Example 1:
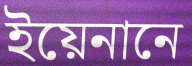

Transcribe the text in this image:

ইয়েনানে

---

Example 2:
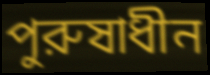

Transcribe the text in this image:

পুরুষাধীন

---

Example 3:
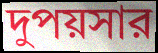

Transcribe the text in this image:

দুপয়সার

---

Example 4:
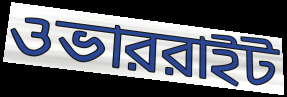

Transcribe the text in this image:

ওভাররাইট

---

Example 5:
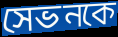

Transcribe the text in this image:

সেভনকে